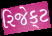
રિજેક્‌ટ